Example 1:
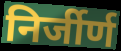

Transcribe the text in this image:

निर्जीर्ण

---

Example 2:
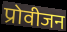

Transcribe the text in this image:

प्रोवीजन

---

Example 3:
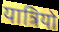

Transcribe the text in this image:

यात्रियो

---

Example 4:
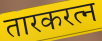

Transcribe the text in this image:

तारकरत्न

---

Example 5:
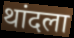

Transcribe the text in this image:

थांदला